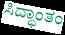
ಸಿದ್ಧಾಂತಂ